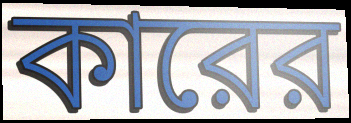
কারের